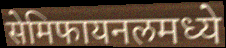
सेमिफायनलमध्ये